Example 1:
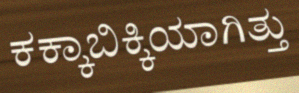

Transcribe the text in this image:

ಕಕ್ಕಾಬಿಕ್ಕಿಯಾಗಿತ್ತು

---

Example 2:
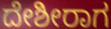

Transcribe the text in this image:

ದೇಶೀರಾಗ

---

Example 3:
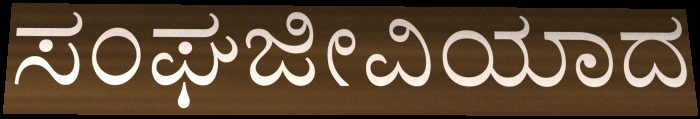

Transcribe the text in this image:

ಸಂಘಜೀವಿಯಾದ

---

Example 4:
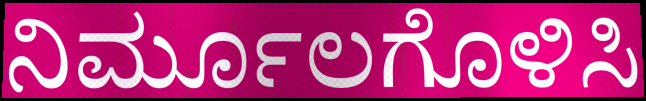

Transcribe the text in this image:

ನಿರ್ಮೂಲಗೊಳಿಸಿ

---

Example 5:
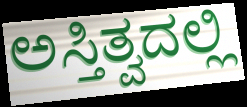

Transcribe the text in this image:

ಅಸ್ತಿತ್ವದಲ್ಲಿ